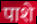
पाशे